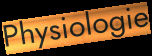
Physiologie